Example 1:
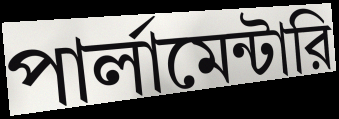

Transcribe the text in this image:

পার্লামেন্টারি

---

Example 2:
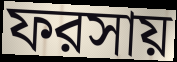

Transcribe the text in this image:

ফরসায়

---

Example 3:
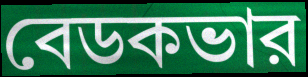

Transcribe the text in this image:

বেডকভার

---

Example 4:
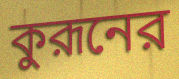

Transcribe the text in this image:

কুরূনের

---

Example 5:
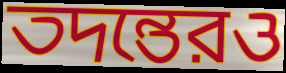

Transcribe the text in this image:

তদন্তেরও